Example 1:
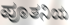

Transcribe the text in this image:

ಪೂತನಿಯ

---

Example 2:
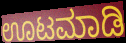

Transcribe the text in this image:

ಊಟಮಾಡಿ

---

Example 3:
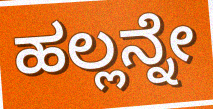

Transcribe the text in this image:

ಹಲ್ಲನ್ನೇ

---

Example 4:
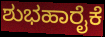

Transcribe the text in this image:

ಶುಭಹಾರೈಕೆ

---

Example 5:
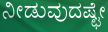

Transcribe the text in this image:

ನೀಡುವುದಷ್ಟೇ